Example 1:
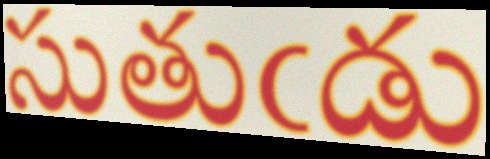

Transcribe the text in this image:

సుతుఁడు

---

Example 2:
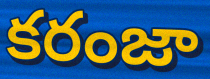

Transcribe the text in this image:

కరంజా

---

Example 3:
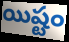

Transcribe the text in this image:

యిష్టం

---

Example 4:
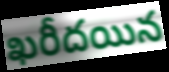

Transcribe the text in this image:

ఖరీదయిన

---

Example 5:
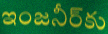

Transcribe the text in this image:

ఇంజనీర్‌కు